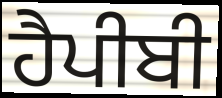
ਹੈਪੀਬੀ